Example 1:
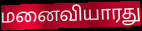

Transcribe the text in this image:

மனைவியாரது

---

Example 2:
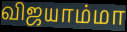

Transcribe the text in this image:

விஜயாம்மா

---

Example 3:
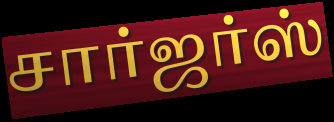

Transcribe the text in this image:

சார்ஜர்ஸ்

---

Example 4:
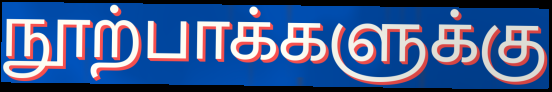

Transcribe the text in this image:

நூற்பாக்களுக்கு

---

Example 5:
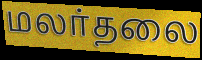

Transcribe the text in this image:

மலர்தலை